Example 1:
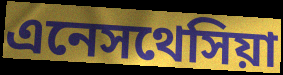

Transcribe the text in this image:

এনেসথেসিয়া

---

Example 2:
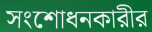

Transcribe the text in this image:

সংশোধনকারীর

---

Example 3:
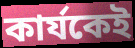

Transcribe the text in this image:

কার্যকেই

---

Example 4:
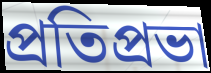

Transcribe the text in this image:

প্রতিপ্রভা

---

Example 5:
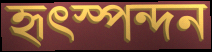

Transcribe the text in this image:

হৃৎস্পন্দন